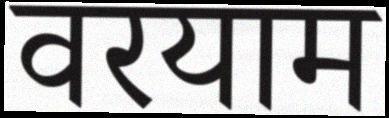
वरयाम